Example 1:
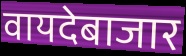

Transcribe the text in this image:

वायदेबाजार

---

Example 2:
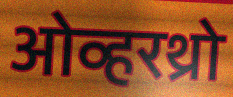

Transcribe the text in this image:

ओव्हरथ्रो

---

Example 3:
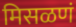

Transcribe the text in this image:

मिसळणं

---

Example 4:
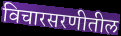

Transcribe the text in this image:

विचारसरणीतील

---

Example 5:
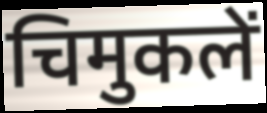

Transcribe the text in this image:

चिमुकलें